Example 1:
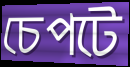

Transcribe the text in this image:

চেপটে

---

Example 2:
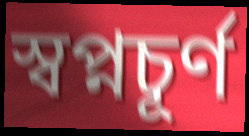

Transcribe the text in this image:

স্বপ্নচূর্ণ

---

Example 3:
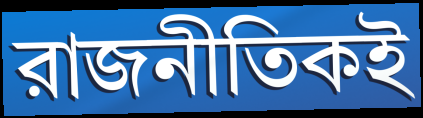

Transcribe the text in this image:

রাজনীতিকই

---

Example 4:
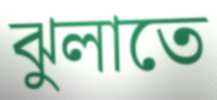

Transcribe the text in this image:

ঝুলাতে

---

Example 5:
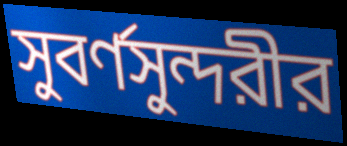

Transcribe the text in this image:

সুবর্ণসুন্দরীর